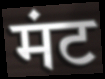
मंट